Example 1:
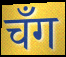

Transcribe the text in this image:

चँग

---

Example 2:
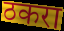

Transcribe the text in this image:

ठकरा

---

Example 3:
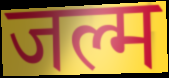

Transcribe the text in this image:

जल्म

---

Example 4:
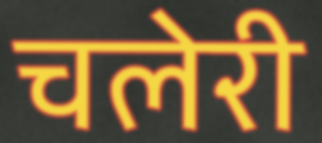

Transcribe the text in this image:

चलेरी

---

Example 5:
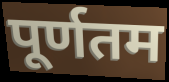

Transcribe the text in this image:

पूर्णतम